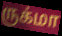
ருக்மா